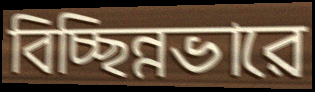
বিচ্ছিন্নভাৱে